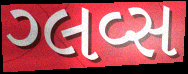
ગ્લવ્સ